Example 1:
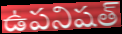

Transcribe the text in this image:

ఉపనిషత్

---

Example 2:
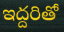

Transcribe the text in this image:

ఇద్దరితో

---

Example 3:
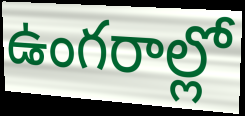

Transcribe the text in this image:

ఉంగరాల్లో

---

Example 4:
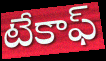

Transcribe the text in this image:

టేకాఫ్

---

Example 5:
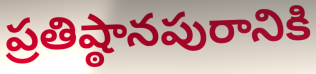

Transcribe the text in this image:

ప్రతిష్ఠానపురానికి